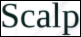
Scalp